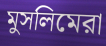
মুসলিমেরা